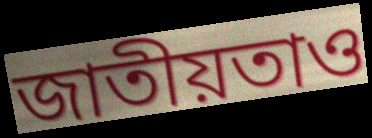
জাতীয়তাও